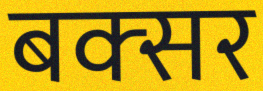
बक्‍सर